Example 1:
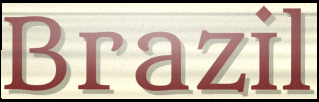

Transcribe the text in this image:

Brazil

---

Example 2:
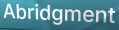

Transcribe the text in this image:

Abridgment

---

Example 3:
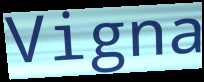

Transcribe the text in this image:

Vigna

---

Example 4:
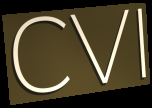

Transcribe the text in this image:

CVI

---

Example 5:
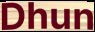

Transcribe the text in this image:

Dhun